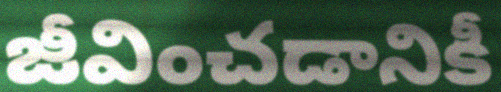
జీవించడానికీ